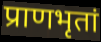
प्राणभृतां